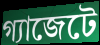
গ্যাজেটে